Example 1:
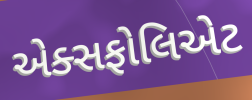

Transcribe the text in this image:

એક્સફોલિએટ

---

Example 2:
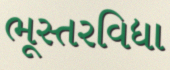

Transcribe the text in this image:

ભૂસ્તરવિદ્યા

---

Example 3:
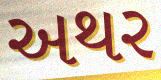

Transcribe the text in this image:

અથર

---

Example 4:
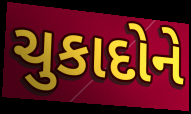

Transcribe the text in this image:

ચુકાદોને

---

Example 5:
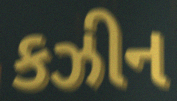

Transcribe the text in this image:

કઝીન